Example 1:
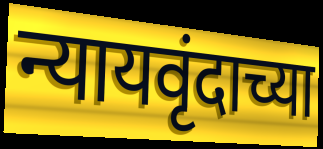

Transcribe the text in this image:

न्यायवृंदाच्या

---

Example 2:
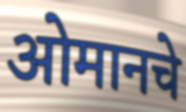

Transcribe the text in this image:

ओमानचे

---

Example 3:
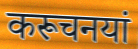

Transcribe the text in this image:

करूचनयां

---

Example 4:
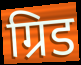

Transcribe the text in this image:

ग्रिड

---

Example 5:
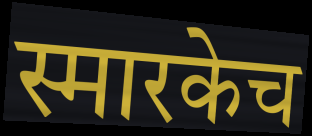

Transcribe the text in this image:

स्मारकेच